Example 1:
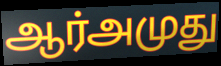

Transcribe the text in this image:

ஆர்அமுது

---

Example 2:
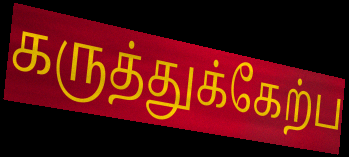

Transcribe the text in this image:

கருத்துக்கேற்ப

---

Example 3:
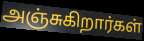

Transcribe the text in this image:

அஞ்சுகிறார்கள்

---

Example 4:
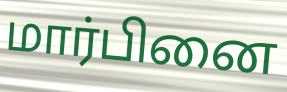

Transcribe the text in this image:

மார்பினை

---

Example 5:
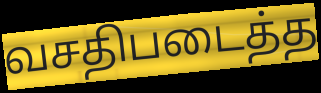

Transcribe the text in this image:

வசதிபடைத்த